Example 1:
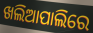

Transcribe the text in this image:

ଖଲିଆପାଲିରେ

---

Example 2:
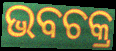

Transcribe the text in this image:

ଭବଚକ୍ର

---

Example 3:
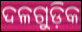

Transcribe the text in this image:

ଦଳଗୁଡ଼ିକ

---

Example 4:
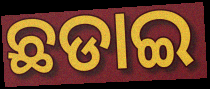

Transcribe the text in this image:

ଛଡାଇ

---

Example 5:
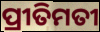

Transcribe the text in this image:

ପ୍ରୀତିମତୀ